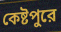
কেষ্টপুরে